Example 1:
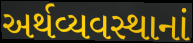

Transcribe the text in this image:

અર્થવ્યવસ્થાનાં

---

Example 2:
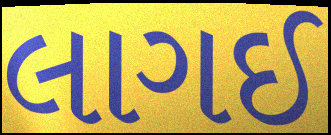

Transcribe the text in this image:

લાગઈ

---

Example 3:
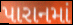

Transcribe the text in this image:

પારાનમાં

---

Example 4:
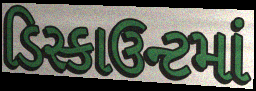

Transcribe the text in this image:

ડિસ્કાઉન્ટમાં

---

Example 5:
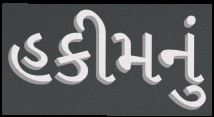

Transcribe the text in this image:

હકીમનું